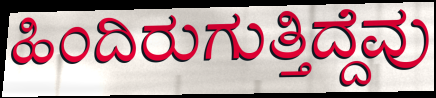
ಹಿಂದಿರುಗುತ್ತಿದ್ದೆವು